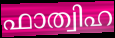
ഫാത്വിഹ